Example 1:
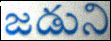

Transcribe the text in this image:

జడుని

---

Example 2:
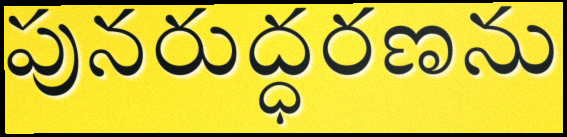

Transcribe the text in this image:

పునరుద్ధరణను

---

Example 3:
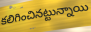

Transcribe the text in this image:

కలిగించినట్టున్నాయి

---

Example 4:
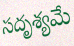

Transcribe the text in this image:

సదృశ్యమే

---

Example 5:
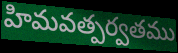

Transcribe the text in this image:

హిమవత్పర్వతము